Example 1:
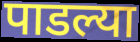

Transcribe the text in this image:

पाडल्या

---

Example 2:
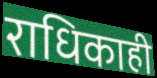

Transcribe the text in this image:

राधिकाही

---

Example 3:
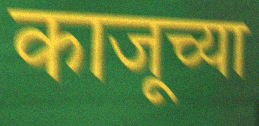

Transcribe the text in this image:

काजूच्या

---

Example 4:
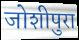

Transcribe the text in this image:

जोशीपुरा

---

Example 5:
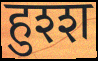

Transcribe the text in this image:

हुश्श